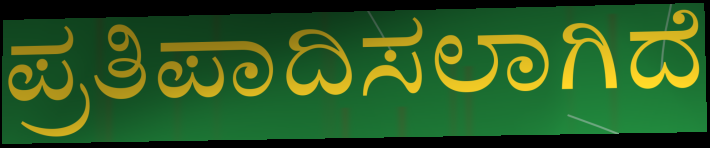
ಪ್ರತಿಪಾದಿಸಲಾಗಿದೆ